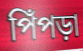
পিঁপড়া